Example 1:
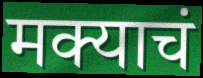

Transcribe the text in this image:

मक्याचं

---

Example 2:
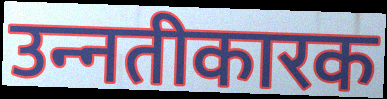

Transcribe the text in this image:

उन्नतीकारक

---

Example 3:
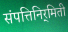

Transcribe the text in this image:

संपत्तिनिर्मिती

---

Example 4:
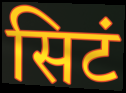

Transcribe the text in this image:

सिटं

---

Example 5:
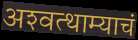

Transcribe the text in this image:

अश्वत्थाम्याचं